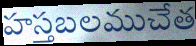
హస్తబలముచేత